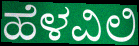
ಹೆಳವಿಲಿ